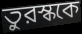
তুরস্ককে